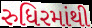
રુધિરમાંથી